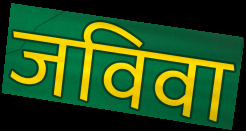
जविवा